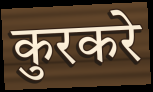
कुरकरे